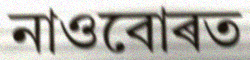
নাওবোৰত